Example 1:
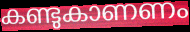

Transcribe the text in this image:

കണ്ടുകാണണം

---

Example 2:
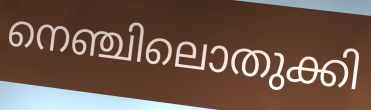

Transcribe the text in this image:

നെഞ്ചിലൊതുക്കി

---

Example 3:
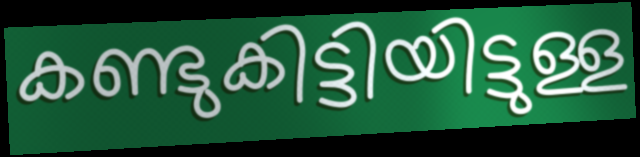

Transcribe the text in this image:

കണ്ടുകിട്ടിയിട്ടുള്ള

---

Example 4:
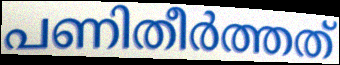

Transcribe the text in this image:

പണിതീർത്തത്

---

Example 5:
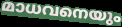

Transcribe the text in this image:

മാധവനെയും